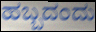
ಹಬ್ಬದಂದು